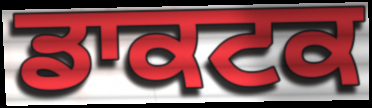
ਡਾਕਟਕ